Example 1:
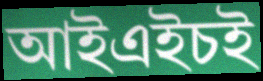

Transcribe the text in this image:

আইএইচই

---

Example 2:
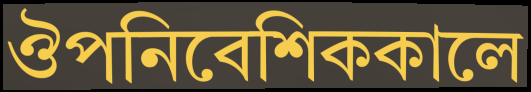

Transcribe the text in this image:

ঔপনিবেশিককালে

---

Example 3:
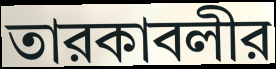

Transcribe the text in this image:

তারকাবলীর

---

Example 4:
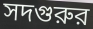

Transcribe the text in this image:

সদগুরুর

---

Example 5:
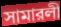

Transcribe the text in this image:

সামারলী